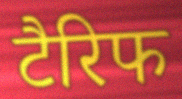
टैरिफ